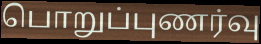
பொறுப்புணர்வு